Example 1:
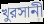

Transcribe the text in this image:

খুরসানী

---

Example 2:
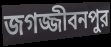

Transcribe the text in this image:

জগজ্জীবনপুর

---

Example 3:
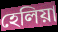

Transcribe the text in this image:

হেলিয়া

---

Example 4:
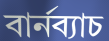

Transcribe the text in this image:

বার্নব্যাচ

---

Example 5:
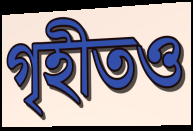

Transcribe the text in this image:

গৃহীতও